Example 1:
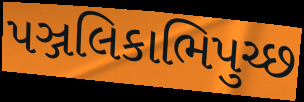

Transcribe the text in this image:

પઞ્જલિકાભિપુચ્છ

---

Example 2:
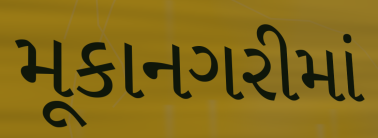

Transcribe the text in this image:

મૂકાનગરીમાં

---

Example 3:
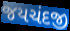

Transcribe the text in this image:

જયચંદજી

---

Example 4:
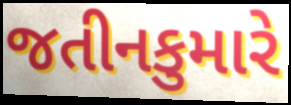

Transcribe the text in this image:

જતીનકુમારે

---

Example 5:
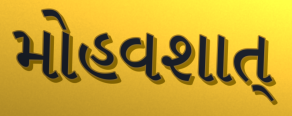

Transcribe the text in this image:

મોહવશાત્